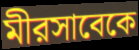
মীরসাবেকে